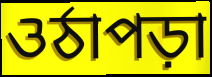
ওঠাপড়া